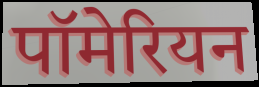
पॉमेरियन